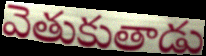
వెతుకుతాడు